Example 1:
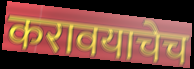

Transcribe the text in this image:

करावयाचेच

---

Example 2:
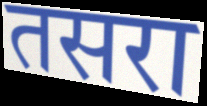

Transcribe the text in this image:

तसरा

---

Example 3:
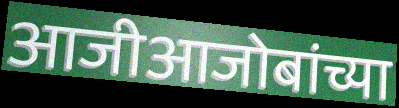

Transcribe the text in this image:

आजीआजोबांच्या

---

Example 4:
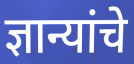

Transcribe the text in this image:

ज्ञान्यांचे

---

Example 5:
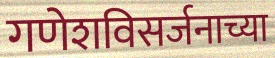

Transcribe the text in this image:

गणेशविसर्जनाच्या